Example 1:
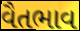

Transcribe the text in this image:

વૈતભાવ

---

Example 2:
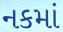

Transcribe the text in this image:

નકમાં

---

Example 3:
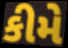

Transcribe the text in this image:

કીમે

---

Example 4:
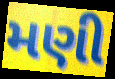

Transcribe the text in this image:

મણી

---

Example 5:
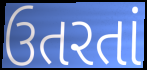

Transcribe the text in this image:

ઉતરતાં